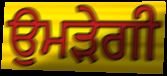
ਉਮੜੇਗੀ